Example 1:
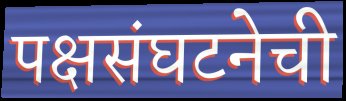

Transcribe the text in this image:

पक्षसंघटनेची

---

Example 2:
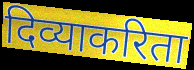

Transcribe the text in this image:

दिव्याकरिता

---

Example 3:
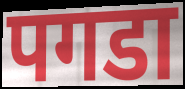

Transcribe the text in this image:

पगडा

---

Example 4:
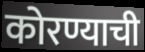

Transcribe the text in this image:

कोरण्याची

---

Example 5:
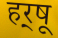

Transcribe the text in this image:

हर्षू